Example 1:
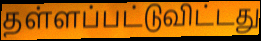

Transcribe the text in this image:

தள்ளப்பட்டுவிட்டது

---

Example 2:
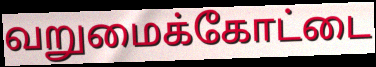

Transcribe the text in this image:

வறுமைக்கோட்டை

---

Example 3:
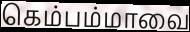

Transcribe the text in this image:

கெம்பம்மாவை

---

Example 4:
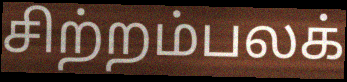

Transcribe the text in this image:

சிற்றம்பலக்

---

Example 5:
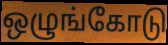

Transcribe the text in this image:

ஒழுங்கோடு